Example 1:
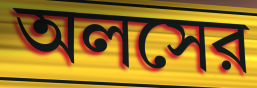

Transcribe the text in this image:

অলসের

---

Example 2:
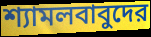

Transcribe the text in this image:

শ্যামলবাবুদের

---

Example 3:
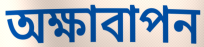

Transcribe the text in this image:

অক্ষাবাপন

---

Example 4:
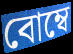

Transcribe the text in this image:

বোম্বে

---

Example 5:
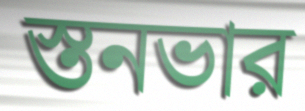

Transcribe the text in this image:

স্তনভার